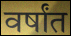
वर्षांत